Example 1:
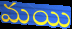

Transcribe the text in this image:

మయి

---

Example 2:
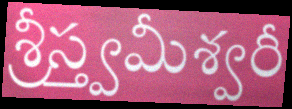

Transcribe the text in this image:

శ్రీస్త్వమీశ్వరీ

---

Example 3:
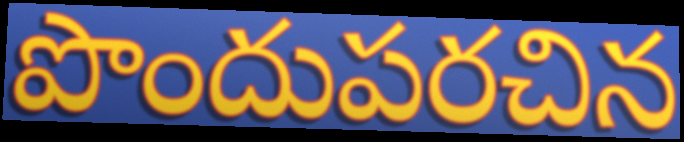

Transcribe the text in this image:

పొందుపరచిన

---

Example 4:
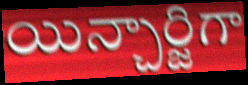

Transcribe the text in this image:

యిన్చార్జిగా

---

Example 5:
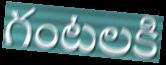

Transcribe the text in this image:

గంటలకి